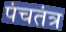
पंचतंत्र